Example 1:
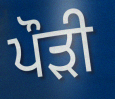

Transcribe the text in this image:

ਪੌੜੀ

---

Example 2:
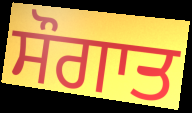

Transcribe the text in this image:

ਸੌਗਾਤ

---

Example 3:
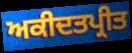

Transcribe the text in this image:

ਅਕੀਦਤਪ੍ਰੀਤ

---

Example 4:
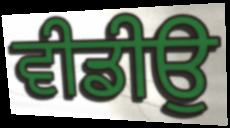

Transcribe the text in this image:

ਵੀਡੀਉ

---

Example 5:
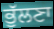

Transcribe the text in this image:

ਭੁੱਲਣਾ